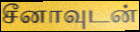
சீனாவுடன்